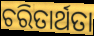
ଚରିତାର୍ଥତା